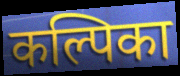
कल्पिका